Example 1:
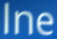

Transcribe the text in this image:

Ine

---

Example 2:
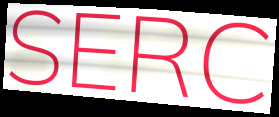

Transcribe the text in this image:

SERC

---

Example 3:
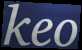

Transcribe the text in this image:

keo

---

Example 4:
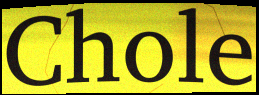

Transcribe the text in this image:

Chole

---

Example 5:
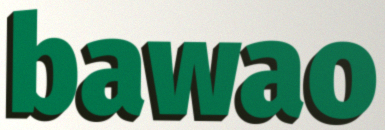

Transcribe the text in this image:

bawao